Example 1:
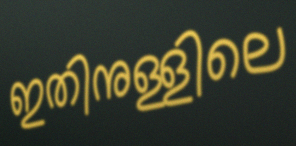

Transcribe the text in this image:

ഇതിനുള്ളിലെ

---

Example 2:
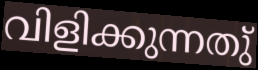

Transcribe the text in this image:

വിളിക്കുന്നതു്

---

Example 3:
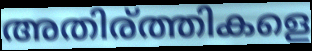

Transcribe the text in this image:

അതിര്ത്തികളെ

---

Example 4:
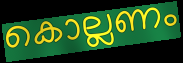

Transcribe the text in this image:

കൊല്ലണം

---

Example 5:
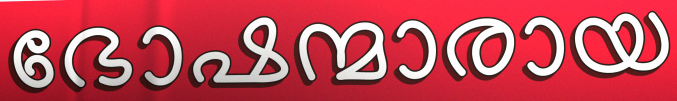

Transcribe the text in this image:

ഭോഷന്മാരായ